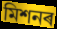
মিশনৰ